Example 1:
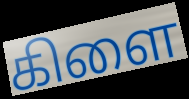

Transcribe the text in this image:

கிளை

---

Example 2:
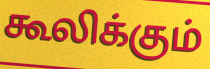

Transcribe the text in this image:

கூலிக்கும்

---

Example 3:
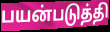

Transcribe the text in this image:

பயன்படுத்தி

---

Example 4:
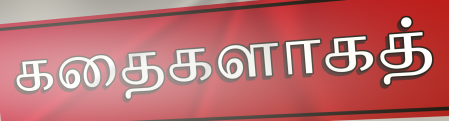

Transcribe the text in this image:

கதைகளாகத்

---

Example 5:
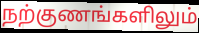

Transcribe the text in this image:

நற்குணங்களிலும்